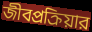
জীবপ্রক্রিয়ার